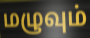
மழுவும்